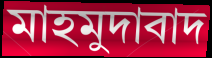
মাহমুদাবাদ